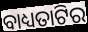
ବାଧ୍ୟତାଟିର